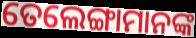
ତେଲେଙ୍ଗାମାନଙ୍କ